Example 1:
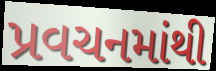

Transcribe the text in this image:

પ્રવચનમાંથી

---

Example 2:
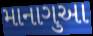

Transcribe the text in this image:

માનાગુઆ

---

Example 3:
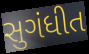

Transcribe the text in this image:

સુગંધીત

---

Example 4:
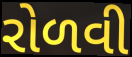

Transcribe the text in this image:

રોળવી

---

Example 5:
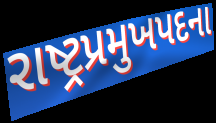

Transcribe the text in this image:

રાષ્ટ્રપ્રમુખપદના